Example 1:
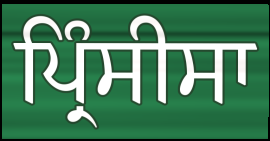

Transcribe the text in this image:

ਪ੍ਰਿੰਸੀਸਾ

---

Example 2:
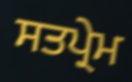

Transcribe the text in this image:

ਸਤਪ੍ਰੇਮ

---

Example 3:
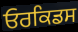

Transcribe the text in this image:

ਓਰਕਿਡਸ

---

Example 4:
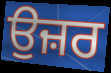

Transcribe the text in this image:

ਉਜ਼ਰ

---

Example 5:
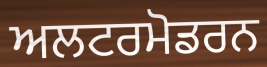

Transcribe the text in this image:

ਅਲਟਰਮੋਡਰਨ